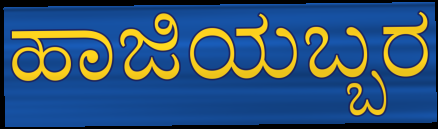
ಹಾಜಿಯಬ್ಬರ